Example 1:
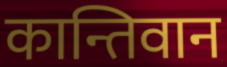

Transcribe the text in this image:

कान्तिवान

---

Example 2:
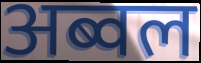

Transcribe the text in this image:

अब्वल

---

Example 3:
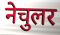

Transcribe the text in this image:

नेचुलर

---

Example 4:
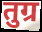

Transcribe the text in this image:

तुग्र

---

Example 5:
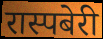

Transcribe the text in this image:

रास्पबेरी